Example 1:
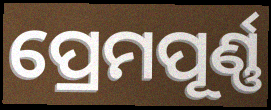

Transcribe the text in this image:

ପ୍ରେମପୂର୍ଣ୍ଣ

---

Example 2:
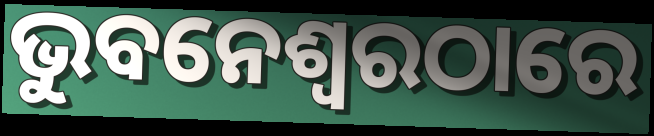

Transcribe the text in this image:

ଭୁବନେଶ୍ଵରଠାରେ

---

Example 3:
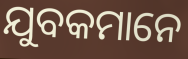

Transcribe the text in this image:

ଯୁବକମାନେ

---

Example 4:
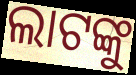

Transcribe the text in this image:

ଲାଟଙ୍କୁ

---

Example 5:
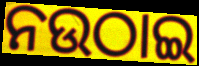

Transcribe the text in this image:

ନଉଠାଇ